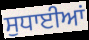
ਸੁਧਾਈਆਂ